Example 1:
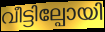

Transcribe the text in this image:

വീട്ടില്പോയി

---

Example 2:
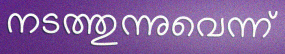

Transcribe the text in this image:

നടത്തുന്നുവെന്ന്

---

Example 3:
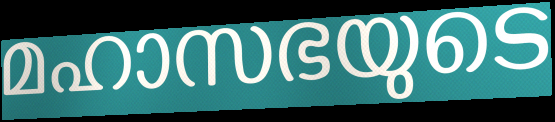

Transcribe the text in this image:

മഹാസഭയുടെ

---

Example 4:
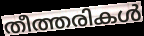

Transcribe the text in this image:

തീത്തരികൾ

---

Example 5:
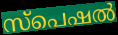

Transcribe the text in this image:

സ്പെഷൽ